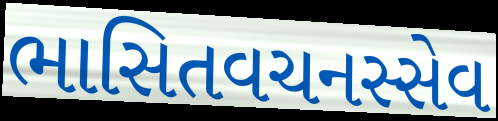
ભાસિતવચનસ્સેવ